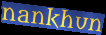
nankhun